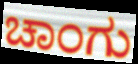
ಚಾಂಗು